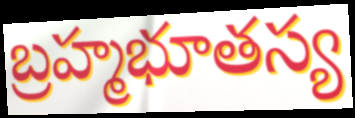
బ్రహ్మభూతస్య